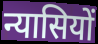
न्यासियों